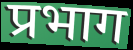
प्रभाग